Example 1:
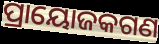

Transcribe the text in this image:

ପ୍ରାୟୋଜକଗଣ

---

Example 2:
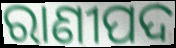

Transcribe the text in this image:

ରାଣୀପଦ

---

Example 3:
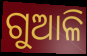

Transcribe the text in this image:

ଗୁଆଳି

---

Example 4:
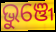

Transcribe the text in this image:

ଭୁଞ୍ଜେ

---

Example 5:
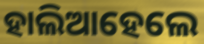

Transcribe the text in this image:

ହାଲିଆହେଲେ